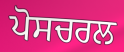
ਪੋਸਚਰਲ